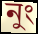
নুং